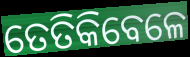
ତେତିକିବେଳେ